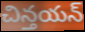
చిన్తయన్